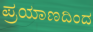
ಪ್ರಯಾಣದಿಂದ